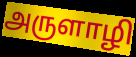
அருளாழி